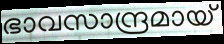
ഭാവസാന്ദ്രമായ്